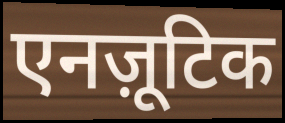
एनज़ूटिक